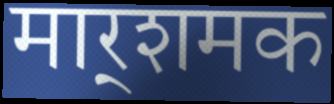
मार्शमक